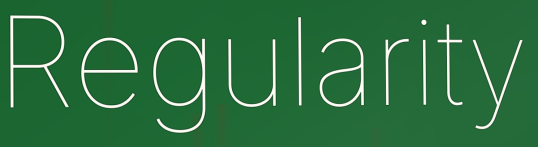
Regularity